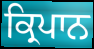
ਕ੍ਰਿਪਾਨ